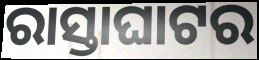
ରାସ୍ତାଘାଟର